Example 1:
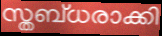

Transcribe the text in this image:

സ്തബ്ധരാക്കി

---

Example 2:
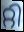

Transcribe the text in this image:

റ്റി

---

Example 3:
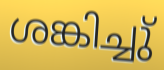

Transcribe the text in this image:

ശങ്കിച്ചു്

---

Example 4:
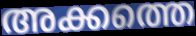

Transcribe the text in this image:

അക്കത്തെ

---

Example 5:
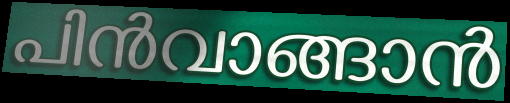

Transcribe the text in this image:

പിൻവാങ്ങാൻ